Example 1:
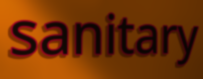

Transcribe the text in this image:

sanitary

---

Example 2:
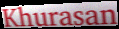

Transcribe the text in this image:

Khurasan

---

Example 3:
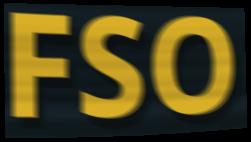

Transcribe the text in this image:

FSO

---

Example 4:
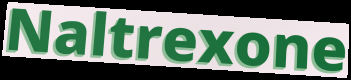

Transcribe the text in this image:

Naltrexone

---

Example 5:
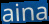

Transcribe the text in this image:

aina